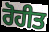
ਰੋਹੀਤ